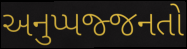
અનુપ્પજ્જનતો